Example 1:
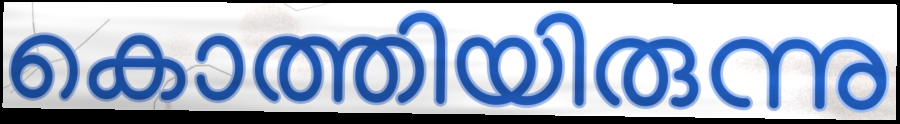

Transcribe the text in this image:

കൊത്തിയിരുന്നു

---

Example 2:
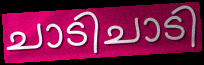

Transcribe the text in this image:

ചാടിചാടി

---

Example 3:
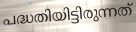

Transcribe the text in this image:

പദ്ധതിയിട്ടിരുന്നത്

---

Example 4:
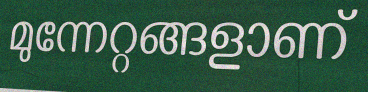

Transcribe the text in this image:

മുന്നേറ്റങ്ങളാണ്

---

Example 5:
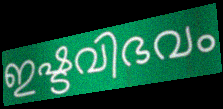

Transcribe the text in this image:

ഇഷ്ടവിഭവം